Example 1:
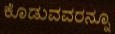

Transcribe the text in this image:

ಕೊಡುವವರನ್ನೂ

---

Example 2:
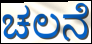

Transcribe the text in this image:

ಚಲನೆ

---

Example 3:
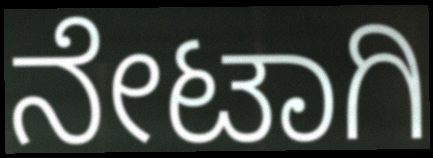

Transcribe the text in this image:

ನೇಟಾಗಿ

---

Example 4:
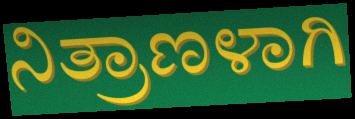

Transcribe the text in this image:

ನಿತ್ರಾಣಳಾಗಿ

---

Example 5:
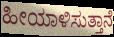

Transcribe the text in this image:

ಹೀಯಾಳಿಸುತ್ತಾನೆ